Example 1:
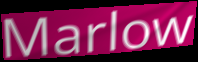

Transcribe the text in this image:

Marlow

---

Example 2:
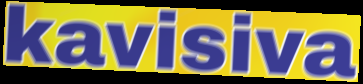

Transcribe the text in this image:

kavisiva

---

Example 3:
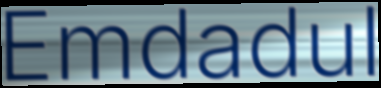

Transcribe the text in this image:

Emdadul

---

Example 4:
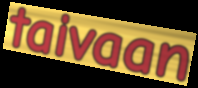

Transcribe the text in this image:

taivaan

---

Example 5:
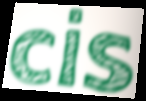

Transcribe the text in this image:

cis